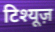
टिश्यूज़